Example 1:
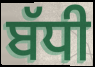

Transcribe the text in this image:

ਬੱਧੀ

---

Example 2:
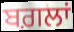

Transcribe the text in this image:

ਬਗ਼ਲਾਂ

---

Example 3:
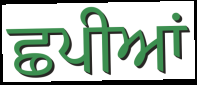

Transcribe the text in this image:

ਛਪੀਆਂ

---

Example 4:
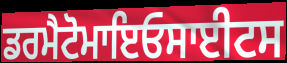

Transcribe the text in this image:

ਡਰਮੈਟੋਮਾਇਓਸਾਈਟਸ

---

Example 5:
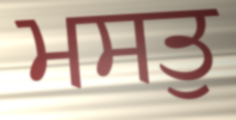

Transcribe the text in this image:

ਮਸਤੁ